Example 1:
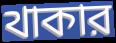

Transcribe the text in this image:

থাকার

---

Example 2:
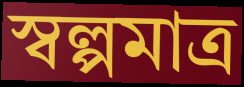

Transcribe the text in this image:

স্বল্পমাত্র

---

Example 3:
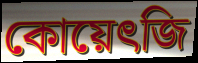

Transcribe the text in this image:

কোয়েৎজি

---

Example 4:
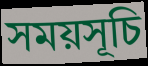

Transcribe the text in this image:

সময়সূচি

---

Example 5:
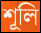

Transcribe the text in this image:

শূলি